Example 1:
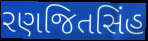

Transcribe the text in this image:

રણજિતસિંહ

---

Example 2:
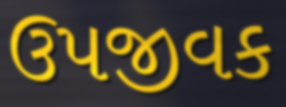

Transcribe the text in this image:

ઉપજીવક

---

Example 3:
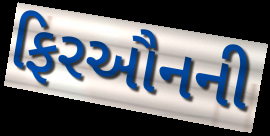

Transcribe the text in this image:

ફિરઔનની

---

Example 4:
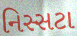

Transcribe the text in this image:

નિસ્સટા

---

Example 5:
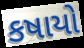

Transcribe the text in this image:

કષાયો